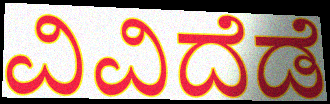
ವಿವಿದೆಡೆ